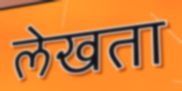
लेखता